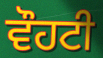
ਵੌਹਟੀ